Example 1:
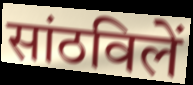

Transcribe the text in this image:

सांठविलें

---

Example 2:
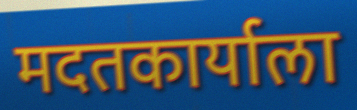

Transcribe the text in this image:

मदतकार्याला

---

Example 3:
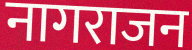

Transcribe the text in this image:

नागराजन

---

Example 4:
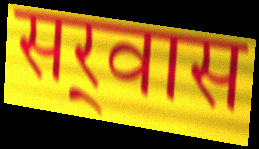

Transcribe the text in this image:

सर्वास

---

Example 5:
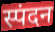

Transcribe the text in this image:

स्पंदन